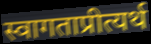
स्वागताप्रीत्यर्थ